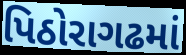
પિઠોરાગઢમાં